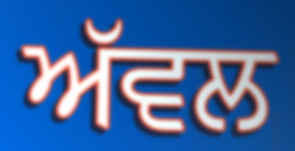
ਅੱਵਲ